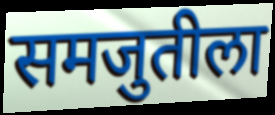
समजुतीला